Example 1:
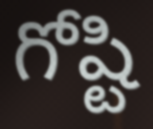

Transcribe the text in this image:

గోష్టి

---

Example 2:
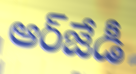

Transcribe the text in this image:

ఆర్‌జేడీ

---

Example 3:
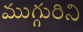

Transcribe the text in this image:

ముగ్గురిని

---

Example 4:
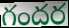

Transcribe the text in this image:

గందర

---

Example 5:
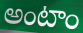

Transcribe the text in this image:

అంటాం